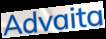
Advaita